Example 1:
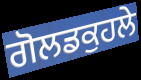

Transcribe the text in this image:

ਗੋਲਡਕੁਹਲੇ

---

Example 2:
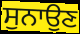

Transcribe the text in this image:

ਸੁਨਾਉਣ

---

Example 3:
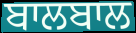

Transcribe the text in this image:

ਬਾਲਬਾਲ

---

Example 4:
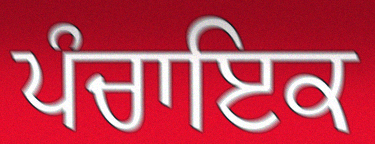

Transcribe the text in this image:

ਪੰਚਾਇਕ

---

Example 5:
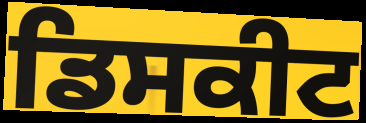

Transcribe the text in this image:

ਡਿਸਕੀਟ